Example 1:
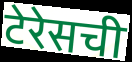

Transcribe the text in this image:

टेरेसची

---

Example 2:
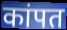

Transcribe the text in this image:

कांपत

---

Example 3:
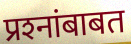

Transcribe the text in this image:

प्रश्‍नांबाबत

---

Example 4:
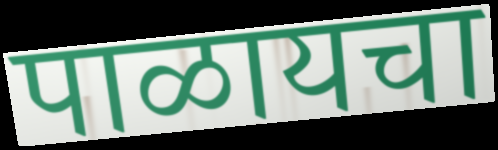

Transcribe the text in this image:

पाळायचा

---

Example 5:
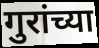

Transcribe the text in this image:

गुरांच्या